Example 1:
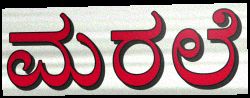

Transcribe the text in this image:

ಮರಲೆ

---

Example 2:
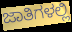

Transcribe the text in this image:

ಜಾತಿಗಳಲ್ಲಿ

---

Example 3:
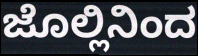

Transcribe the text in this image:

ಜೊಲ್ಲಿನಿಂದ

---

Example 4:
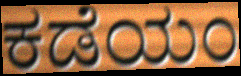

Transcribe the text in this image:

ಕಡೆಯಂ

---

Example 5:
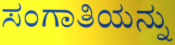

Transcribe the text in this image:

ಸಂಗಾತಿಯನ್ನು